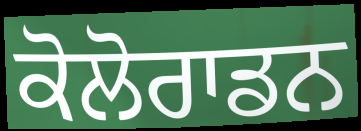
ਕੋਲੋਰਾਡਨ